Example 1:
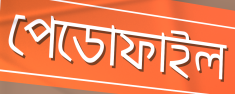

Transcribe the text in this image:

পেডোফাইল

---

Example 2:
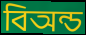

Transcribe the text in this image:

বিঅন্ড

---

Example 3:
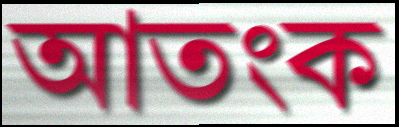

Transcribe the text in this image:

আতংক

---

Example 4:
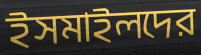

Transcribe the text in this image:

ইসমাইলদের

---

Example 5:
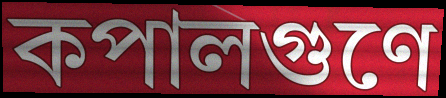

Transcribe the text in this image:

কপালগুণে